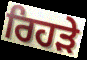
ਰਿਹੜੇ